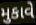
મુકાવે